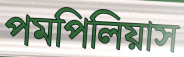
পমপিলিয়াস